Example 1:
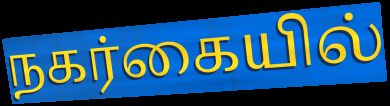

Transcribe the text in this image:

நகர்கையில்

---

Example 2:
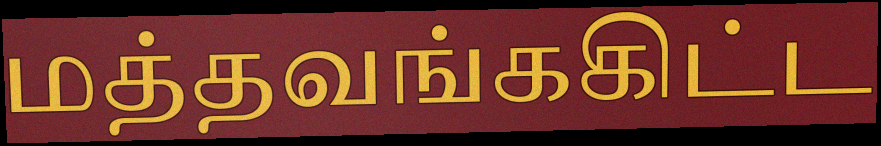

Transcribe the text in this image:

மத்தவங்ககிட்ட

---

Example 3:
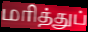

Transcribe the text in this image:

மரித்துப்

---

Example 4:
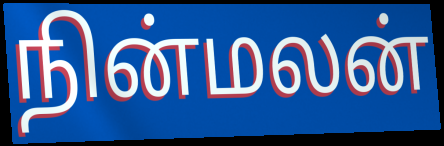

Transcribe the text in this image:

நின்மலன்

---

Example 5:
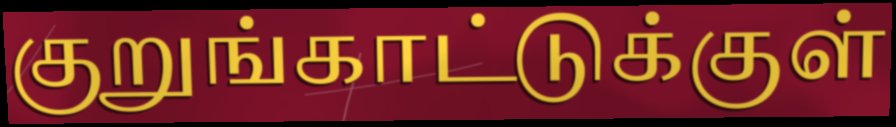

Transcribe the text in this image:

குறுங்காட்டுக்குள்